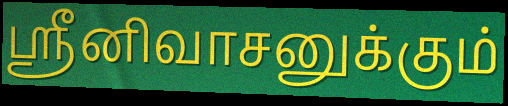
ஸ்ரீனிவாசனுக்கும்